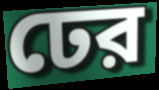
ঢের